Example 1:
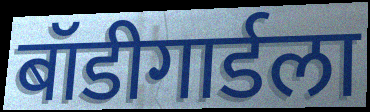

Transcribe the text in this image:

बॉडीगार्डला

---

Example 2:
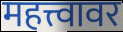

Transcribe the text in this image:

महत्त्वावर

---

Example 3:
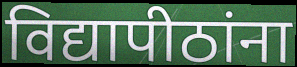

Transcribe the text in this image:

विद्यापीठांना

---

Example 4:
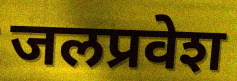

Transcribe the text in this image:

जलप्रवेश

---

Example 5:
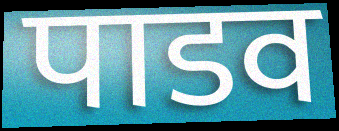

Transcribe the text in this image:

पाडव